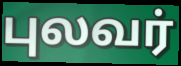
புலவர்